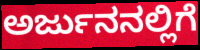
ಅರ್ಜುನನಲ್ಲಿಗೆ